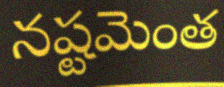
నష్టమెంత